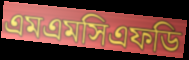
এমএমসিএফডি